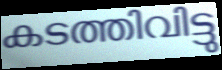
കടത്തിവിട്ടു